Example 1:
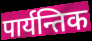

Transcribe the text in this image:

पार्यन्तिक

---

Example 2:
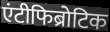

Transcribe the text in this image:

एंटीफिब्रोटिक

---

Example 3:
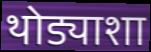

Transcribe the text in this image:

थोड्याशा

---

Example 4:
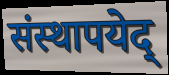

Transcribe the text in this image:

संस्थापयेद्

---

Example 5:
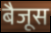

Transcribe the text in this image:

बैजूस